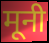
मूनी